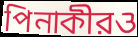
পিনাকীরও